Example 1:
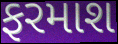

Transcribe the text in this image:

ફરમાશ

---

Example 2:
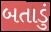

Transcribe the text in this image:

બતાડું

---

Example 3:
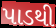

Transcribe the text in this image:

પાડથી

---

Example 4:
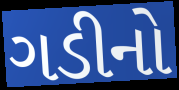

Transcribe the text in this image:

ગડીનો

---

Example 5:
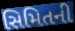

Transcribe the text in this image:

સિમિતની